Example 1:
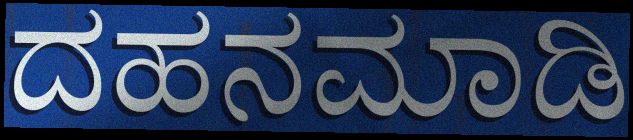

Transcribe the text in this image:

ದಹನಮಾಡಿ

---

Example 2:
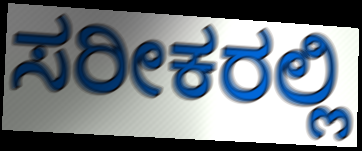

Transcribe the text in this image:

ಸರೀಕರಲ್ಲಿ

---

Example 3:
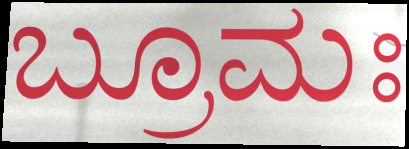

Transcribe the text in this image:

ಬ್ರೂಮಃ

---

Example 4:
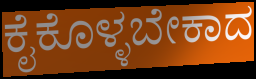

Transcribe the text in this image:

ಕೈಕೊಳ್ಳಬೇಕಾದ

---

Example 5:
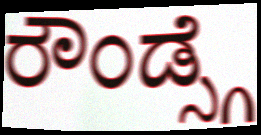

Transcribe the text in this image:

ರೌಂಡ್ಸ್ಗೆ